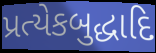
પ્રત્યેકબુદ્ધાદિ